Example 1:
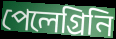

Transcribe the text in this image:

পেলেগ্রিনি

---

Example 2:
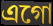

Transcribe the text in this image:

এগো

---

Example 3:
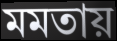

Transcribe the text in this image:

মমতায়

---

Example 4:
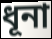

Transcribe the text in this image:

ধূনা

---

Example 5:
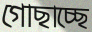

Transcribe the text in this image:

গোছাচ্ছে